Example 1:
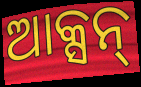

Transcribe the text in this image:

ଆକ୍ସନ୍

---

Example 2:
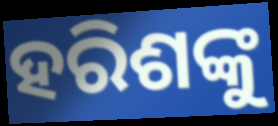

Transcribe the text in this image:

ହରିଶଙ୍କୁ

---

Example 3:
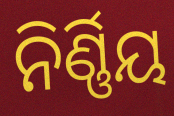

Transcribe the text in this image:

ନିର୍ଣ୍ଣିୟ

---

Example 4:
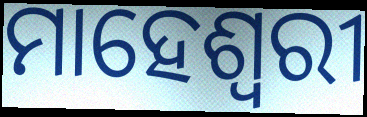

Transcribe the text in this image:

ମାହେଶ୍ଵରୀ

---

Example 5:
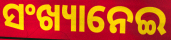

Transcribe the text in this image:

ସଂଖ୍ୟାନେଇ